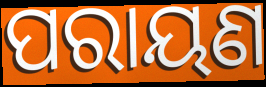
ପରାୟଣ